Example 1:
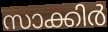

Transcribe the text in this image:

സാക്കിർ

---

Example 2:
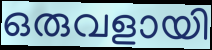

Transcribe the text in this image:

ഒരുവളായി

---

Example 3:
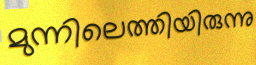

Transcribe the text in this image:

മുന്നിലെത്തിയിരുന്നു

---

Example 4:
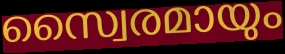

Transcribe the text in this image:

സ്വൈരമായും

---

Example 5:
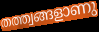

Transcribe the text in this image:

തത്ത്വങ്ങളാണു